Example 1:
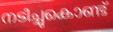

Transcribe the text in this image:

നടിച്ചുകൊണ്ട്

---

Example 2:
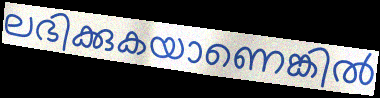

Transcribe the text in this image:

ലഭിക്കുകയാണെങ്കിൽ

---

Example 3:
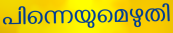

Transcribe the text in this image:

പിന്നെയുമെഴുതി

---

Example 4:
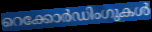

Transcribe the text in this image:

റെക്കോർഡിംഗുകൾ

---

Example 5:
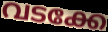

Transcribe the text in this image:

വടക്കേ